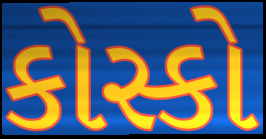
કોસ્કો